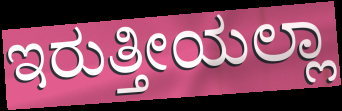
ಇರುತ್ತೀಯಲ್ಲಾ